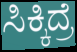
ಸಿಕ್ಕಿದ್ರೆ